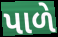
પાળે